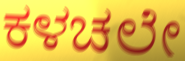
ಕಳಚಲೇ